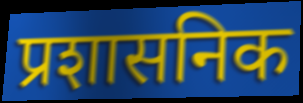
प्रशासनिक